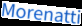
Morenatti